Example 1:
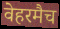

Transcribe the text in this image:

वेहरमैच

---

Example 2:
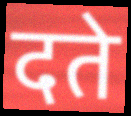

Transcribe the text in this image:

दते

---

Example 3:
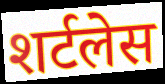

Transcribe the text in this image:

शर्टलेस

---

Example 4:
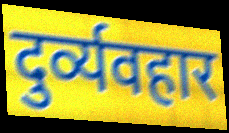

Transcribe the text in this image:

दुर्व्यवहार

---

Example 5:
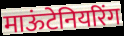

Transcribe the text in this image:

माऊंटेनियरिंग